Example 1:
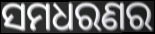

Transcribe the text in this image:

ସମଧରଣର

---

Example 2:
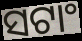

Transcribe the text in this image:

ସଟାଂ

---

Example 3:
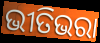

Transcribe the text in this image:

ଭୀତିଭରା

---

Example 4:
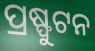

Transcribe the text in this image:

ପ୍ରଷ୍ଫୁଟନ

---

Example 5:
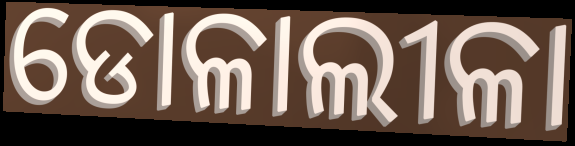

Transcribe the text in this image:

ଡୋଳାଲୀଳା